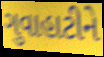
ગુવાહાટીને